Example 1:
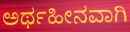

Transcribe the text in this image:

ಅರ್ಥಹೀನವಾಗಿ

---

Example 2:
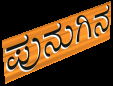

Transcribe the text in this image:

ಪುನುಗಿನ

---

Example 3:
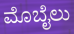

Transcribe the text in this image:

ಮೊಬೈಲು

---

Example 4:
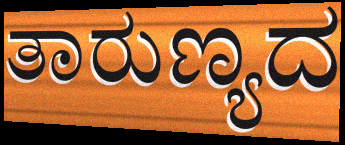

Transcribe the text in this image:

ತಾರುಣ್ಯದ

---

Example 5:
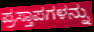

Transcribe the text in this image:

ಪ್ರಸ್ತಾಪಗಳನ್ನು